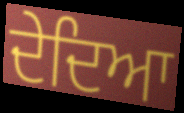
ਦੇਦਿਆ